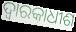
ଦ୍ୱାରକାଧୀଶ